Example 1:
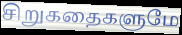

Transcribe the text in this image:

சிறுகதைகளுமே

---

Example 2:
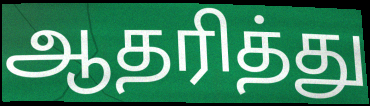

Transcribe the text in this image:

ஆதரித்து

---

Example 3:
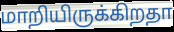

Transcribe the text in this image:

மாறியிருக்கிறதா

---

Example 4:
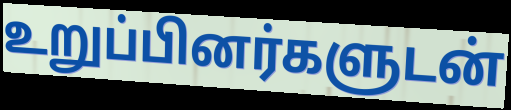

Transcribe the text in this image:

உறுப்பினர்களுடன்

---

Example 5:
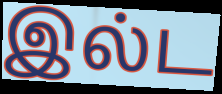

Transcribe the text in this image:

இல்ட